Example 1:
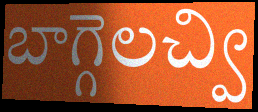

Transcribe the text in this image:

బాగ్గెలచ్వి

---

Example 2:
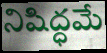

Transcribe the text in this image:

నిషిద్ధమే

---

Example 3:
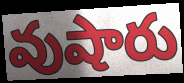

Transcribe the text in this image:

వుషారు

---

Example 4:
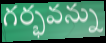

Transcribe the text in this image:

గర్భవన్ను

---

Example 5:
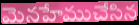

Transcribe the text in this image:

మెనహేముచేసిన